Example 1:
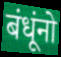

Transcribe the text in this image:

बंधूंनो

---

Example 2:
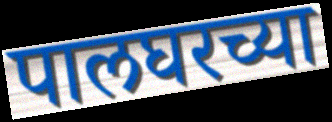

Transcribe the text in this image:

पालघरच्या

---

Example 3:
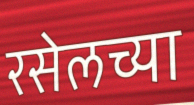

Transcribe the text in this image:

रसेलच्या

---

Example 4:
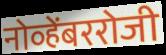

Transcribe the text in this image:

नोव्हेंबररोजी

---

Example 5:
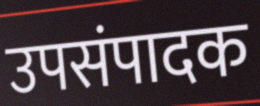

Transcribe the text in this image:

उपसंपादक